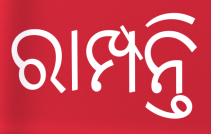
ରାମ୍ପନ୍ତି